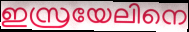
ഇസ്രയേലിനെ